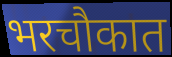
भरचौकात